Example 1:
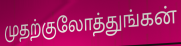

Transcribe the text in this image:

முதற்குலோத்துங்கன்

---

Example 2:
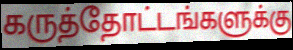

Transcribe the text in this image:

கருத்தோட்டங்களுக்கு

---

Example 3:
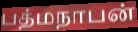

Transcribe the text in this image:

பத்மநாபன்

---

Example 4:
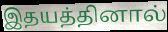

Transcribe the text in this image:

இதயத்தினால்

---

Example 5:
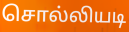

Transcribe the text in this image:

சொல்லியடி